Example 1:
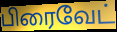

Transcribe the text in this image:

பிரைவேட்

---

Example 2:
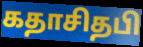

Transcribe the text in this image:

கதாசிதபி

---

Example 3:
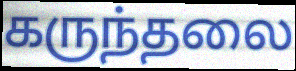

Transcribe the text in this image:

கருந்தலை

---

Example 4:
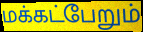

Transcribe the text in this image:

மக்கட்பேறும்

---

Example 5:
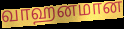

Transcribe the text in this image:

வாஹனமான